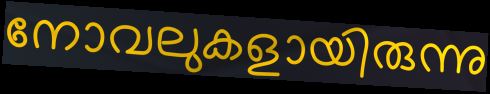
നോവലുകളായിരുന്നു